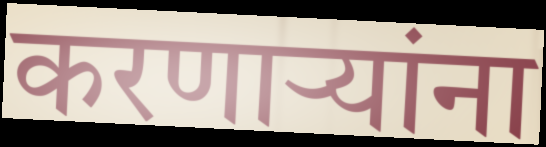
करणाऱ्यांना